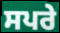
ਸਪਰੇ